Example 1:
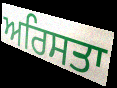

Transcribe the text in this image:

ਅਰਿਸਤਾ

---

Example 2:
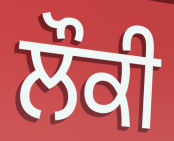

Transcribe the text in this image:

ਲੌਕੀ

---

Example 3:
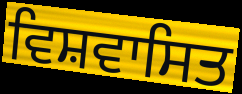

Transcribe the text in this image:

ਵਿਸ਼ਵਾਸਿਤ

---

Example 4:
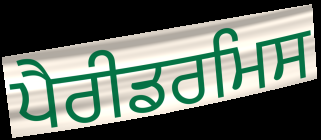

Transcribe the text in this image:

ਪੈਰੀਡਰਮਿਸ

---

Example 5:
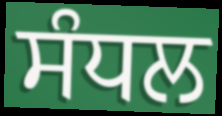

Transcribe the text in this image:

ਸੰਧਲ